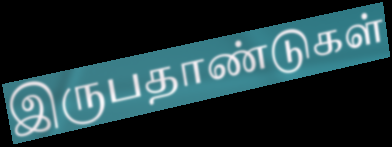
இருபதாண்டுகள்